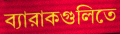
ব্যারাকগুলিতে